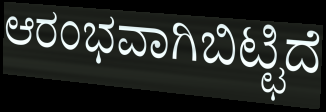
ಆರಂಭವಾಗಿಬಿಟ್ಟಿದೆ